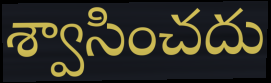
శ్వాసించదు